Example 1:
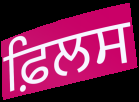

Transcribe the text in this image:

ਫ਼ਿਲਸ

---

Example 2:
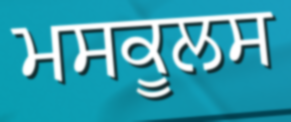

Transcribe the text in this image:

ਮਸਕੂਲਸ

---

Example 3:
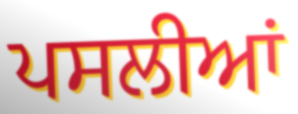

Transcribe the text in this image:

ਪਸਲੀਆਂ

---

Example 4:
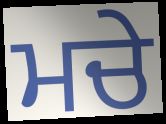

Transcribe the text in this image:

ਮਚੇ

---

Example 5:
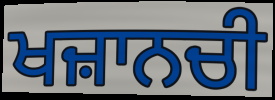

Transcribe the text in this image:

ਖਜ਼ਾਨਚੀ